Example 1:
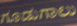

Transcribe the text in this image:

ಗೂಡುಗಾಲು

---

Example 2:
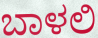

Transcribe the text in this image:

ಬಾಳಲಿ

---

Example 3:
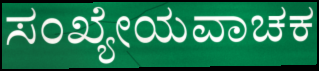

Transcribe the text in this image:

ಸಂಖ್ಯೇಯವಾಚಕ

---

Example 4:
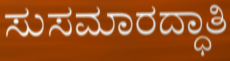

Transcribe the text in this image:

ಸುಸಮಾರದ್ಧಾತಿ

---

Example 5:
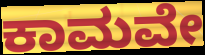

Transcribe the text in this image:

ಕಾಮವೇ